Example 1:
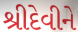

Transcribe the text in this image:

શ્રીદેવીને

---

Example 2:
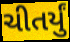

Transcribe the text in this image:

ચીતર્યું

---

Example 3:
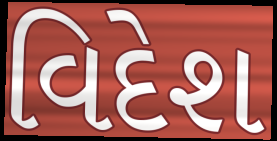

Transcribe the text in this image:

વિદેશ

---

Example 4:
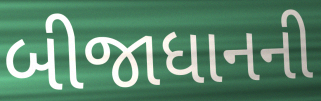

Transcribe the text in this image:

બીજાધાનની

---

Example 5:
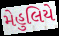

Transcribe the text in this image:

મેહુલિયે